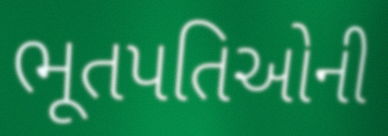
ભૂતપતિઓની